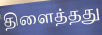
திளைத்தது